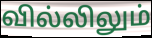
வில்லிலும்